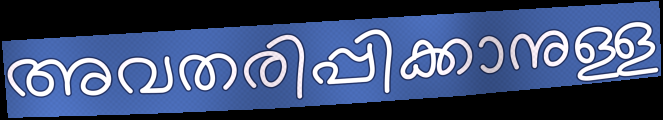
അവതരിപ്പിക്കാനുള്ള